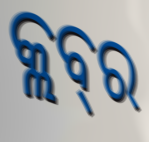
କ୍ଲବ୍‌ର